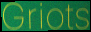
Griots